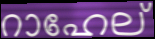
റാഹേല്